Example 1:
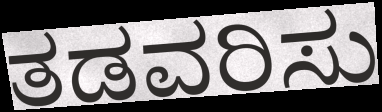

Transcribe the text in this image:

ತಡವರಿಸು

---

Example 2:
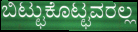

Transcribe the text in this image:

ಬಿಟ್ಟುಕೊಟ್ಟವರಲ್ಲ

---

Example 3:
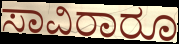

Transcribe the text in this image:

ಸಾವಿರಾರೂ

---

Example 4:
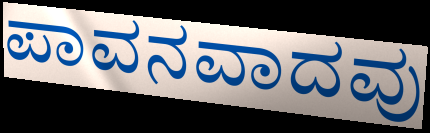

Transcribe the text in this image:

ಪಾವನವಾದವು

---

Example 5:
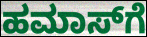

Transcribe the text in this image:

ಹಮಾಸ್‌ಗೆ